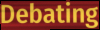
Debating